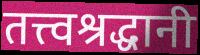
तत्त्वश्रद्धानी